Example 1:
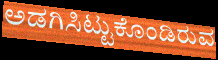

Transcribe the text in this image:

ಅಡಗಿಸಿಟ್ಟುಕೊಂಡಿರುವ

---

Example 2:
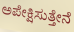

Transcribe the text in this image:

ಅಪೇಕ್ಷಿಸುತ್ತೇನೆ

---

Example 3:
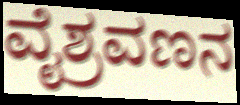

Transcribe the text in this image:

ವೈಶ್ರವಣನ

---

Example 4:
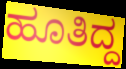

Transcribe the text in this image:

ಹೂತಿದ್ದ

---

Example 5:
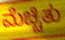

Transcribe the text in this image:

ಮೆಚ್ಚಿತು